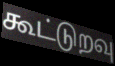
கூட்டுறவு